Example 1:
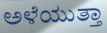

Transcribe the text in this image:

ಅಳೆಯುತ್ತಾ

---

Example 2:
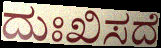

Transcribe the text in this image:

ದುಃಖಿಸದೆ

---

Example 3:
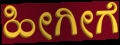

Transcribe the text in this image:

ಹೀಗೀಗೆ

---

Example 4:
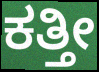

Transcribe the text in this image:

ಕತ್ತೀ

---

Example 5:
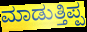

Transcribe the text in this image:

ಮಾಡುತ್ತಿಪ್ಪ